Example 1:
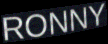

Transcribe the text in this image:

RONNY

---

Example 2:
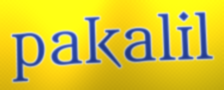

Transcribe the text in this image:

pakalil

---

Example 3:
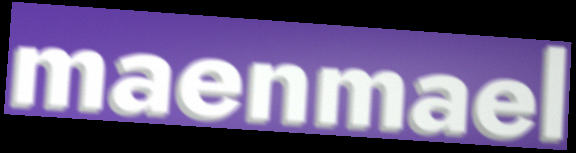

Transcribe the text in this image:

maenmael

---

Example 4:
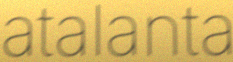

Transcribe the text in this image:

atalanta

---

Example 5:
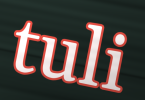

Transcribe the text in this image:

tuli